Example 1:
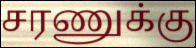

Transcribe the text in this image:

சரணுக்கு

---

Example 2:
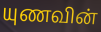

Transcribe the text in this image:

யுணவின்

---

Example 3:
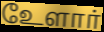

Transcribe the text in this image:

உேளார்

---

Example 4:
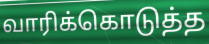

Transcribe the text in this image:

வாரிக்கொடுத்த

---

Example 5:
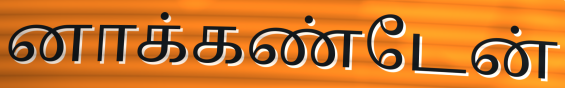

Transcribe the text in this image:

னாக்கண்டேன்